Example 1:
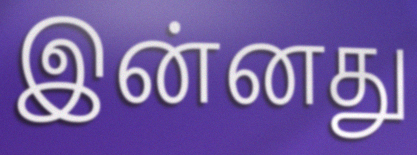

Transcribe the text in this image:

இன்னது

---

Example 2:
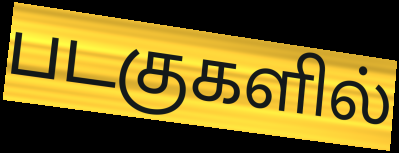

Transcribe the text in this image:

படகுகளில்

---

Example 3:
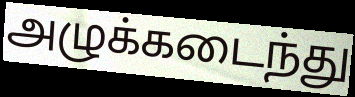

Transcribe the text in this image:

அழுக்கடைந்து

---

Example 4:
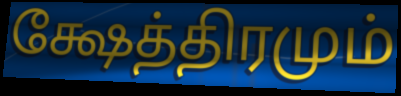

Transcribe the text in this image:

க்ஷேத்திரமும்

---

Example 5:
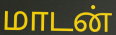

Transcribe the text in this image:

மாடன்